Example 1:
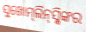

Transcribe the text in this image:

ସୁଖୋମ୍‌ଲିନ୍‌ସ୍କିଙ୍କର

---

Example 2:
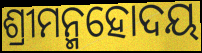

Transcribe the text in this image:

ଶ୍ରୀମନ୍ମହୋଦୟ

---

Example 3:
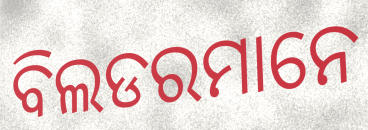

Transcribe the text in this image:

ବିଲଡରମାନେ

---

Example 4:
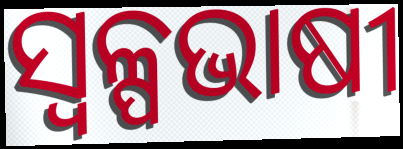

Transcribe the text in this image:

ସ୍ୱଳ୍ପଭାଷୀ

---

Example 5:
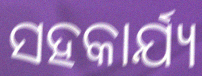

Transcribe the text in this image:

ସହକାର୍ଯ୍ୟ